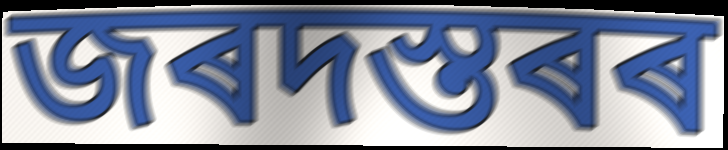
জৰদস্তৰৰ